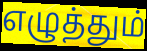
எழுத்தும்